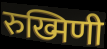
रुख्मिणी